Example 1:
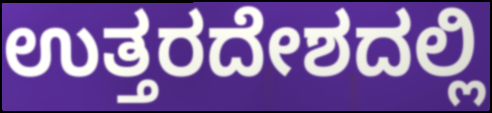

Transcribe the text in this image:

ಉತ್ತರದೇಶದಲ್ಲಿ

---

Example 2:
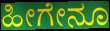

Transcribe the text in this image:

ಹೀಗೇನೂ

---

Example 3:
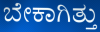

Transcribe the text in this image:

ಬೇಕಾಗಿತ್ತು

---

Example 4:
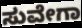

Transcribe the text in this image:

ಸುವೇಗಾ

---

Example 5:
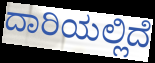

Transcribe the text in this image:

ದಾರಿಯಲ್ಲಿದೆ